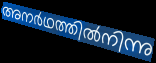
അനർഥത്തിൽനിന്നു